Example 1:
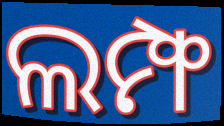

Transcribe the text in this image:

ଲମ୍ଫ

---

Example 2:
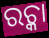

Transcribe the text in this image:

ରଚ୍କା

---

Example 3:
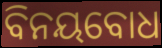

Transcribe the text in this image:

ବିନୟବୋଧ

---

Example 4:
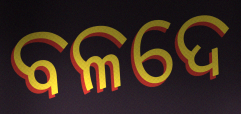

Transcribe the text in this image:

ବଳଦେ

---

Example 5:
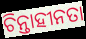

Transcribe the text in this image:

ଚିନ୍ତାହୀନତା